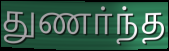
துணர்ந்த